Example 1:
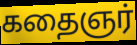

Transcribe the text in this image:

கதைஞர்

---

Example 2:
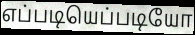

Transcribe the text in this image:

எப்படியெப்படியோ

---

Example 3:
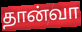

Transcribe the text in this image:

தான்வா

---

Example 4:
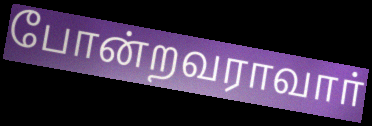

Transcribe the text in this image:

போன்றவராவார்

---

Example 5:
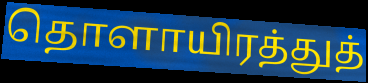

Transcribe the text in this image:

தொளாயிரத்துத்